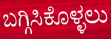
ಬಗ್ಗಿಸಿಕೊಳ್ಳಲು